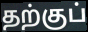
தற்குப்